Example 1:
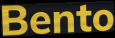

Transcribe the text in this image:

Bento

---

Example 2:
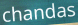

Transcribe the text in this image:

chandas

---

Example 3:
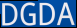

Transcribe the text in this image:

DGDA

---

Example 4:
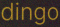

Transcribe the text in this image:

dingo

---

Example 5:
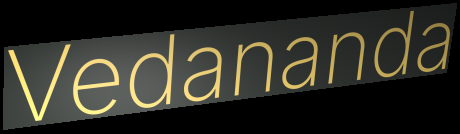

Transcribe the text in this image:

Vedananda